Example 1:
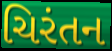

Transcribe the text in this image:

ચિરંતન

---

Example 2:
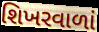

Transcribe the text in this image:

શિખરવાળાં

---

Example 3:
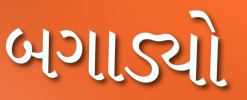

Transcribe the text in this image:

બગાડ્યો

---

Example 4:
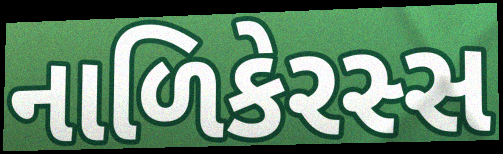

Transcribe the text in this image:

નાળિકેરસ્સ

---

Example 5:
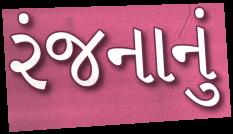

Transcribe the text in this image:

રંજનાનું